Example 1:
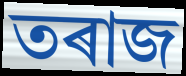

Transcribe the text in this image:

তৰাজ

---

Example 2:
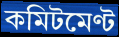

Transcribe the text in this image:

কমিটমেণ্ট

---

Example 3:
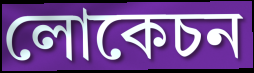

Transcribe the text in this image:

লোকেচন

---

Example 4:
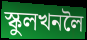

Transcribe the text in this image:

স্কুলখনলৈ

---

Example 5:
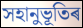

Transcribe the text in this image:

সহানুভূতিৰ